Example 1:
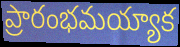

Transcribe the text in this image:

ప్రారంభమయ్యాక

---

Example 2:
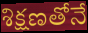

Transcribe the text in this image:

శిక్షణతోనే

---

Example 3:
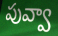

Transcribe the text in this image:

పువ్వా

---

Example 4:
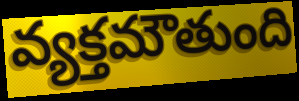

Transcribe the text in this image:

వ్యక్తమౌతుంది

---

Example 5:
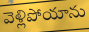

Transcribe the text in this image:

వెళ్లిపోయాను